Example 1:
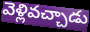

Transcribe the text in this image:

వెళ్లివచ్చాడు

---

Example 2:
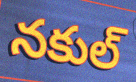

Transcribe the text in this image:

నకుల్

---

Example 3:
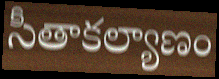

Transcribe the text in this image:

సీతాకల్యాణం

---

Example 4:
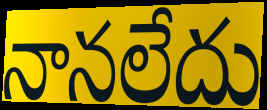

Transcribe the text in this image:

నానలేదు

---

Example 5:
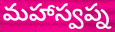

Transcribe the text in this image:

మహాస్వప్న